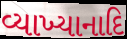
વ્યાખ્યાનાદિ